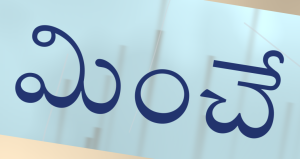
మించే